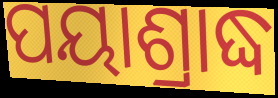
ପୟାଶ୍ରାଦ୍ଧ